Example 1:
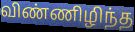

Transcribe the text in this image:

விண்ணிழிந்த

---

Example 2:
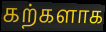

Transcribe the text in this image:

கற்களாக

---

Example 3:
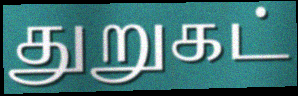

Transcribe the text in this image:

துறுகட்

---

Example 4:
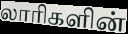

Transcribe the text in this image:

லாரிகளின்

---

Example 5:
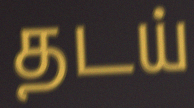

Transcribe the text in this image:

தடய்